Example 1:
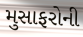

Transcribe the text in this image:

મુસાફરોની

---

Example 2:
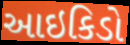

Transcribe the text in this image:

આઇકિડો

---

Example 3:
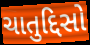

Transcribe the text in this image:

ચાતુદ્દિસો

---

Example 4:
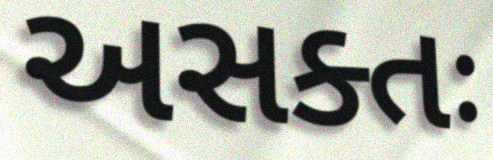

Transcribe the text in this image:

અસક્તઃ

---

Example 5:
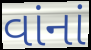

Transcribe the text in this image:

વાંનાં